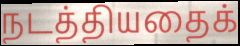
நடத்தியதைக்